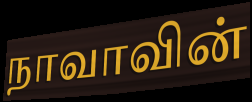
நாவாவின்